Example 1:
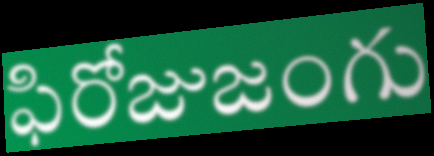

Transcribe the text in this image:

ఫిరోజుజంగు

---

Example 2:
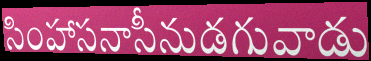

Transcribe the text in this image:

సింహాసనాసీనుడగువాడు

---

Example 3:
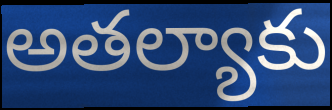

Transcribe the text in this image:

అతల్యాకు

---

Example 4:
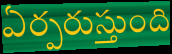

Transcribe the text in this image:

ఏర్పరుస్తుంది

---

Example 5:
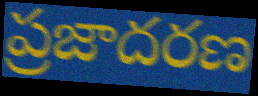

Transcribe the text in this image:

ప్రజాదరణ